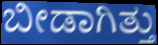
ಬೀಡಾಗಿತ್ತು